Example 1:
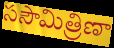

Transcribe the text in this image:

ససౌమిత్రిణా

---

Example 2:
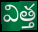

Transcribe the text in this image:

విత్త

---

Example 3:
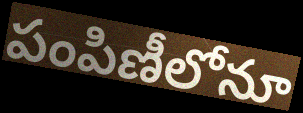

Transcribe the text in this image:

పంపిణీలోనూ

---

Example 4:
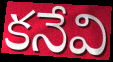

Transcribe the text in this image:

కనేవి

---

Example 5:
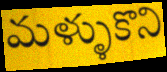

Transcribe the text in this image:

మళ్ళుకొని